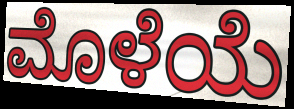
ಮೊಳೆಯೆ